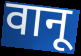
वानू